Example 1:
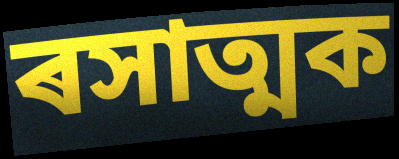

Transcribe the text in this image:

ৰসাত্মক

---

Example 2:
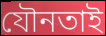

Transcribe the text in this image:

যৌনতাই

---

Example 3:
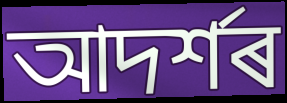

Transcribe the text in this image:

আদৰ্শৰ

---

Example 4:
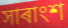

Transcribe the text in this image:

সাৰাংশ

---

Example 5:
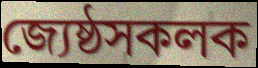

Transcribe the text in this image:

জ্যেষ্ঠসকলক